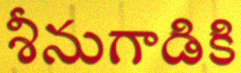
శీనుగాడికి